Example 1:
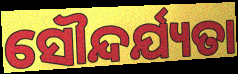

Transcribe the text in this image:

ସୌନ୍ଦର୍ଯ୍ୟତା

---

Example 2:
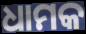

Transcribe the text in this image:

ଧାମକ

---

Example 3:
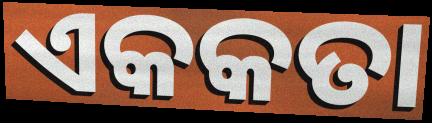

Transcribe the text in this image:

ଏକକତା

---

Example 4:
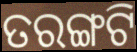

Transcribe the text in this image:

ତରଙ୍ଗଟି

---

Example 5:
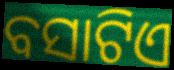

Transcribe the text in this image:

ବସାଟିଏ